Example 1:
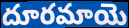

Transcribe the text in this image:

దూరమాయె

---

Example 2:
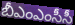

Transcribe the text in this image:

బీఎంఎంసీసీ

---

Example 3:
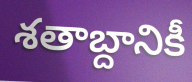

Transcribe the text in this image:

శతాబ్దానికీ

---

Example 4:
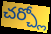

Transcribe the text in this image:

చర్చ్లో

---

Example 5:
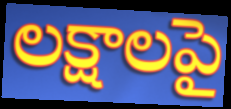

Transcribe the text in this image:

లక్షాలపై